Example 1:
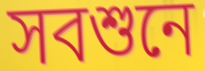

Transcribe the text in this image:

সবশুনে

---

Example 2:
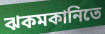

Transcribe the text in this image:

ঝকমকানিতে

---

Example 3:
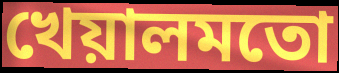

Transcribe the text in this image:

খেয়ালমতো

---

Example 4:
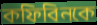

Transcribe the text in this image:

কফিবিনকে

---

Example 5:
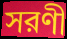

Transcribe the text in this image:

সরণী